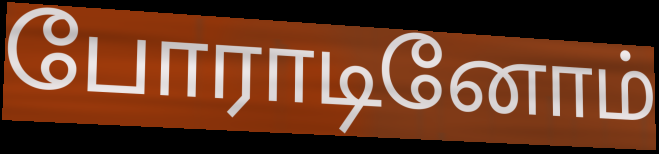
போராடினோம்